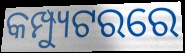
କମ୍ପ୍ୟୁଟରରେ